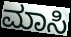
ಮಾಸಿ